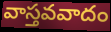
వాస్తవవాదం